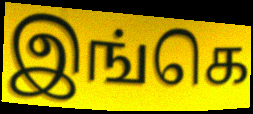
இங்கெ